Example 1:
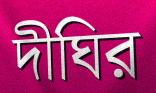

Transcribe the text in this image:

দীঘির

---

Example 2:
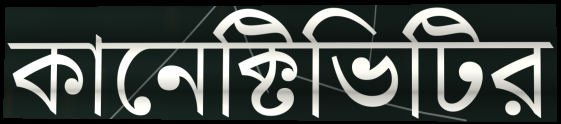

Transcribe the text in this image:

কানেক্টিভিটির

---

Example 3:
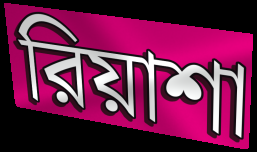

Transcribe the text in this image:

রিয়াশা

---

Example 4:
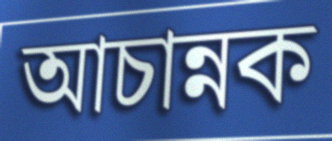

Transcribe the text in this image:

আচান্নক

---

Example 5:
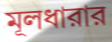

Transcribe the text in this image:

মূলধারার